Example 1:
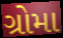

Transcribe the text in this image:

ગ્રોમા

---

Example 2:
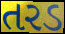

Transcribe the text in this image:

તરડ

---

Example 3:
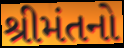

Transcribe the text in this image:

શ્રીમંતનો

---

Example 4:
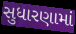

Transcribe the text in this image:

સુધારણામાં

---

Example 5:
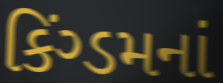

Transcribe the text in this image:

કિંગ્ડમનાં